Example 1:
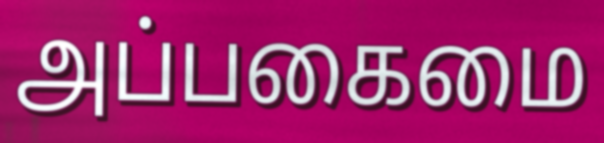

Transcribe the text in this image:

அப்பகைமை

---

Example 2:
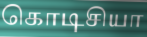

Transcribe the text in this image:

கொடிசியா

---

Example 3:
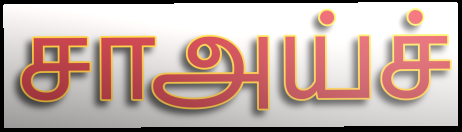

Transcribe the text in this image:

சாஅய்ச்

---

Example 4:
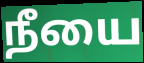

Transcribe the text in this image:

நீயை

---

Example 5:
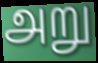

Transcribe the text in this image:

அறு